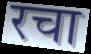
रचा